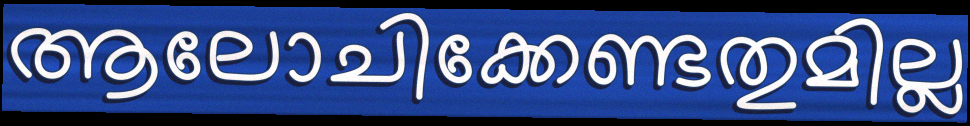
ആലോചിക്കേണ്ടതുമില്ല